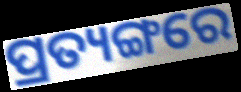
ପ୍ରତ୍ୟଙ୍ଗରେ